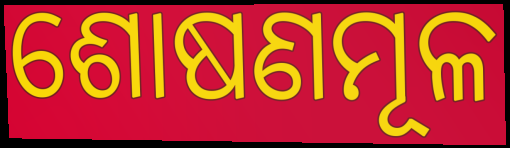
ଶୋଷଣମୂଳ